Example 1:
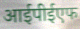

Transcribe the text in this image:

आईपीईएफ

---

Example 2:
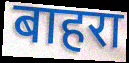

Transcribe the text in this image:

बाहरा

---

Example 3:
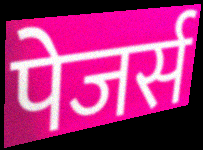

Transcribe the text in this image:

पेजर्स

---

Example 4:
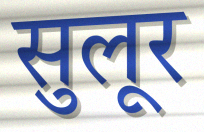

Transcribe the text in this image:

सुलूर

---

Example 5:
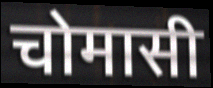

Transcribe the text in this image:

चोमासी